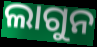
ଲାଗୁନ